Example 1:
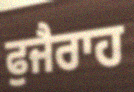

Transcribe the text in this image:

ਫੁਜੈਰਾਹ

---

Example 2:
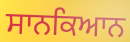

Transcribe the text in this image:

ਸਾਨਕਿਆਨ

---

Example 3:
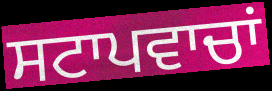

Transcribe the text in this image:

ਸਟਾਪਵਾਚਾਂ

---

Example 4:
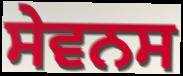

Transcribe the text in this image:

ਸੇਵਨਸ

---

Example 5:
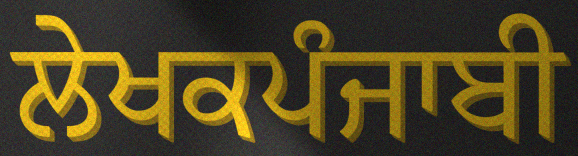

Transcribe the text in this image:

ਲੇਖਕਪੰਜਾਬੀ